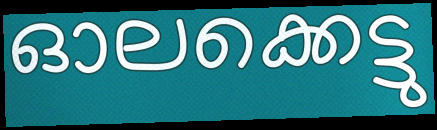
ഓലക്കെട്ടു